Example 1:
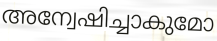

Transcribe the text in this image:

അന്വേഷിച്ചാകുമോ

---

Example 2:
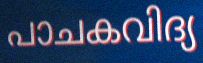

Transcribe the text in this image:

പാചകവിദ്യ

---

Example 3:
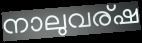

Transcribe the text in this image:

നാലുവര്ഷ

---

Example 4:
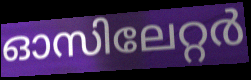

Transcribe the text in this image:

ഓസിലേറ്റർ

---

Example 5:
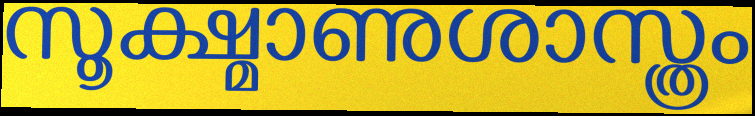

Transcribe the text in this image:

സൂക്ഷ്മാണുശാസ്ത്രം